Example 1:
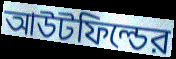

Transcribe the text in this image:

আউটফিল্ডের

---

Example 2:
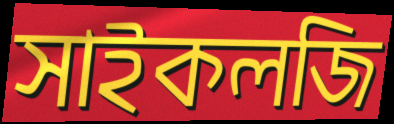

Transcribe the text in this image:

সাইকলজি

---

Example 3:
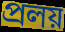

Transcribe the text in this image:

প্রলয়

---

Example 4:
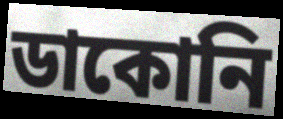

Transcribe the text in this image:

ডাকোনি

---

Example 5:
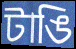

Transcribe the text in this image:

টাঙি